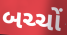
બચ્ચોં